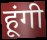
हूंगी